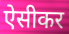
ऐसीकर